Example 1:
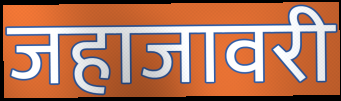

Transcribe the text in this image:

जहाजावरी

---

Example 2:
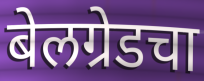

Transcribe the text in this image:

बेलग्रेडचा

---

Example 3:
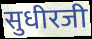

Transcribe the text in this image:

सुधीरजी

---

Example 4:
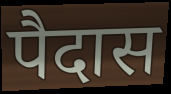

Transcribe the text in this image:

पैदास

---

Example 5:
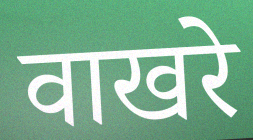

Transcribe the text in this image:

वाखरे